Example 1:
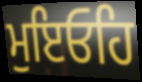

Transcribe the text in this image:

ਮੁਇਓਹਿ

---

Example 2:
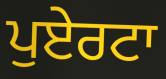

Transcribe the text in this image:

ਪੁਏਰਟਾ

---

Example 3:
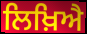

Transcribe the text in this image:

ਲਿਖ਼ਿਐ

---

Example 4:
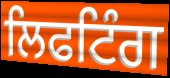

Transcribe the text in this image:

ਲਿਫਟਿੰਗ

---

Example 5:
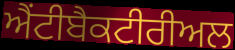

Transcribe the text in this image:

ਐਂਟੀਬੈਕਟੀਰੀਅਲ